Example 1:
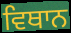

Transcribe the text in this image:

ਵਿਥਾਨ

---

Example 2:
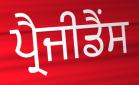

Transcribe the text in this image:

ਪ੍ਰੈਜੀਡੈਂਸ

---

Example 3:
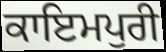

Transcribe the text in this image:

ਕਾਇਮਪੁਰੀ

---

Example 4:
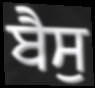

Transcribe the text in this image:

ਬੈਸੁ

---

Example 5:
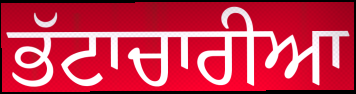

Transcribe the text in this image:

ਭੱਟਾਚਾਰੀਆ